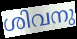
ശിവനു